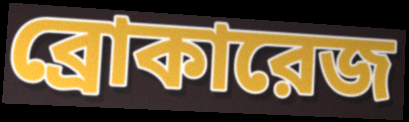
ব্রোকারেজ